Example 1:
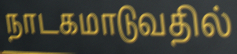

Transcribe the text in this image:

நாடகமாடுவதில்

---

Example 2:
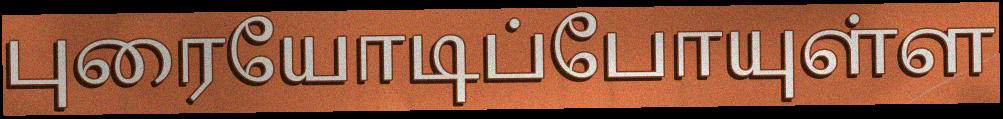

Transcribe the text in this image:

புரையோடிப்போயுள்ள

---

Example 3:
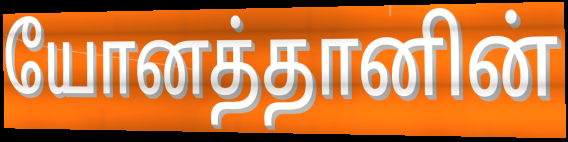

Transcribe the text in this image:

யோனத்தானின்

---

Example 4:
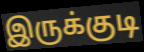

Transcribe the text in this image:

இருக்குடி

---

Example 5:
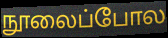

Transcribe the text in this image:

நூலைப்போல